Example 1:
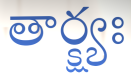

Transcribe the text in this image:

తార్క్ష్యః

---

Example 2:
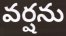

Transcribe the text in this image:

వర్షను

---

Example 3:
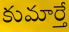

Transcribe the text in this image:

కుమార్తే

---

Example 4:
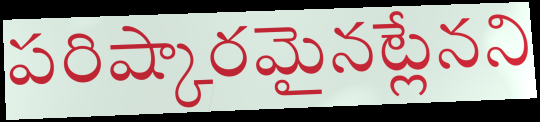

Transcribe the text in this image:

పరిష్కారమైనట్లేనని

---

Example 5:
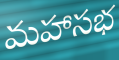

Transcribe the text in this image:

మహాసభ